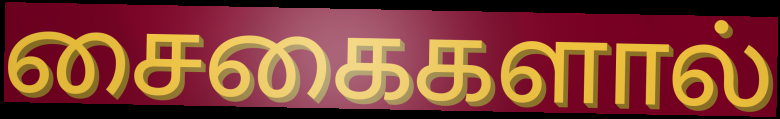
சைகைகளால்